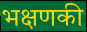
भक्षणकी